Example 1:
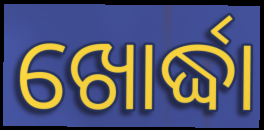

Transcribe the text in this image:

ଖୋର୍ଦ୍ଧା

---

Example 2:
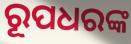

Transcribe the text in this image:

ରୂପଧରଙ୍କ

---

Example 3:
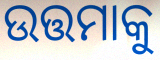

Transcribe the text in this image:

ଉତ୍ତମାକୁ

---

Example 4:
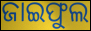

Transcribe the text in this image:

ଜାଇଫୁଲ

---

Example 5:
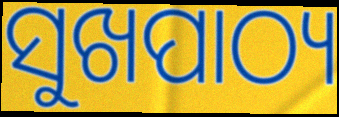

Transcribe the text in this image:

ସୁଖପାଠ୍ୟ